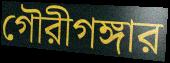
গৌরীগঙ্গার